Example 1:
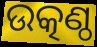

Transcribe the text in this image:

ଉତ୍କଣ୍ଠ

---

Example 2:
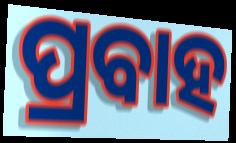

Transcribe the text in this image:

ପ୍ରବାହ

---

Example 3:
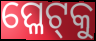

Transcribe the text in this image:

ପ୍ଳେଟ୍‌କୁ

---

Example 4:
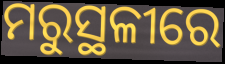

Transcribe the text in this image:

ମରୁସ୍ଥଳୀରେ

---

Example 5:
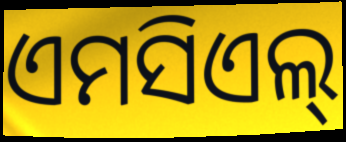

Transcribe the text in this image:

ଏମସିଏଲ୍